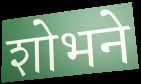
शोभने